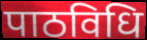
पाठविधि